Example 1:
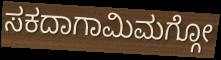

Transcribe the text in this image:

ಸಕದಾಗಾಮಿಮಗ್ಗೋ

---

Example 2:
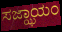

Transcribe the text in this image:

ಸಜ್ಝಾಯಂ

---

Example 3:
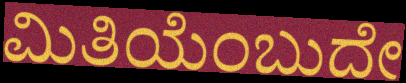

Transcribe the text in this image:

ಮಿತಿಯೆಂಬುದೇ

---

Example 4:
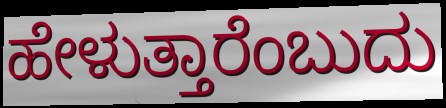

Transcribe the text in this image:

ಹೇಳುತ್ತಾರೆಂಬುದು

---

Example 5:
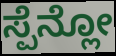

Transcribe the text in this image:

ಸ್ಪೆನ್ಲೋ